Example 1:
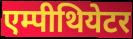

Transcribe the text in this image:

एम्पीथियेटर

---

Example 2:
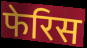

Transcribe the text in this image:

फेरिस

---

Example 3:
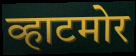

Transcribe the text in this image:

व्हाटमोर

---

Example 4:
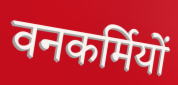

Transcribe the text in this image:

वनकर्मियों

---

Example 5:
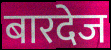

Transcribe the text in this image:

बारदेज